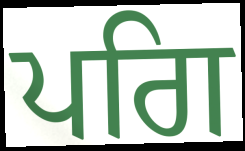
ਪਗਿ